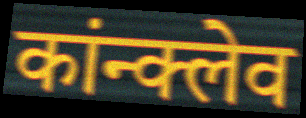
कांन्क्लेव